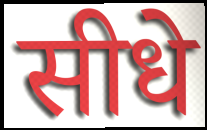
सीधे